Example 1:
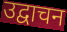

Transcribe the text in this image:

उद्वाचन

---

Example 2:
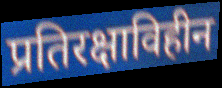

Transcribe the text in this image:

प्रतिरक्षाविहीन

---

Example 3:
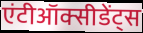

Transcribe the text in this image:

एंटीऑक्सीडेंट्स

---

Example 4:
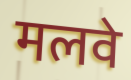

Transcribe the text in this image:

मलवे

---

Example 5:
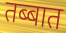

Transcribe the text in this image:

तब्बात